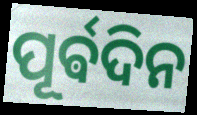
ପୂର୍ଵଦିନ